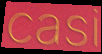
casi